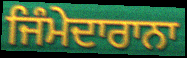
ਜਿੰਮੇਦਾਰਾਨਾ